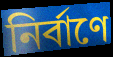
নির্বাণে